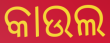
କାଉଲ